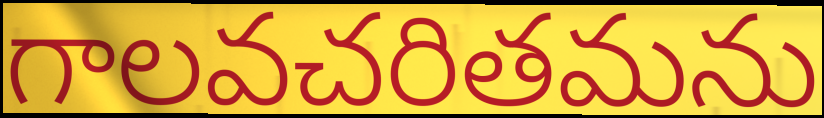
గాలవచరితమను